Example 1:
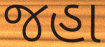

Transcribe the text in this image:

જહા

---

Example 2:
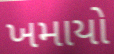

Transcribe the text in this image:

ખમાયો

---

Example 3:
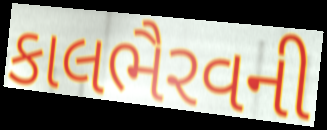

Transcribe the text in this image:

કાલભૈરવની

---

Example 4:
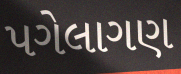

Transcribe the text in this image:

પગેલાગણ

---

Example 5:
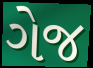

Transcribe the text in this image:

ગેજ